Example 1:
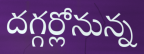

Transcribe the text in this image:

దగ్గర్లోనున్న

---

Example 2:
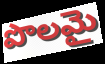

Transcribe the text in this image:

పొలమై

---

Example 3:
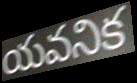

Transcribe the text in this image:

యవనిక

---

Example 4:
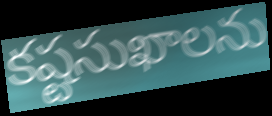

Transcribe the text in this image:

కష్టసుఖాలను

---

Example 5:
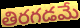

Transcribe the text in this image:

తిరగడమే